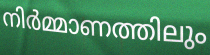
നിർമ്മാണത്തിലും